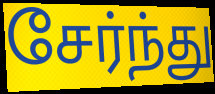
சேர்ந்து